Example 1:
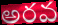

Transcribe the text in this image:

అరవ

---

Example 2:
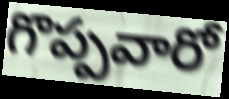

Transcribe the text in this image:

గొప్పవారో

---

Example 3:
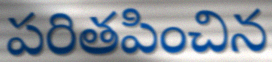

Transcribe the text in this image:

పరితపించిన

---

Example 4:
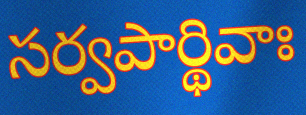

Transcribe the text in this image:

సర్వపార్థివాః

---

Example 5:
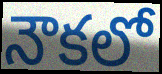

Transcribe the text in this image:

నౌకలో